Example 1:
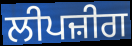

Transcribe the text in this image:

ਲੀਪਜ਼ੀਗ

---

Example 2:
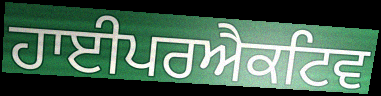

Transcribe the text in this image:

ਹਾਈਪਰਐਕਟਿਵ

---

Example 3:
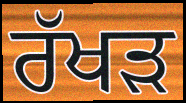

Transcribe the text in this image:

ਰੱਖੜ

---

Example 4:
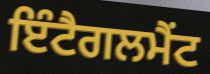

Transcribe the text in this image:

ਇੰਟੈਗਲਮੈਂਟ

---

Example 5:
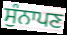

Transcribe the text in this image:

ਸੁੰਨਾਪਣ